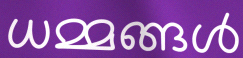
ധമ്മങ്ങൾ